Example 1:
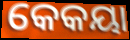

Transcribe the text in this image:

କେକୟା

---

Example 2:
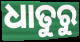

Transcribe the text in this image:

ଧାତୁରୁ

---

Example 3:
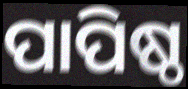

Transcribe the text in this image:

ପାପିଷ୍ଠ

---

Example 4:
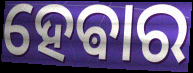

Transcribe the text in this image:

ହେଵାର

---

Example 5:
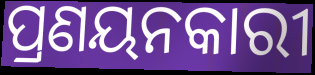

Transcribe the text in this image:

ପ୍ରଣୟନକାରୀ